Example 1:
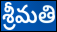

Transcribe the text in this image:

శ్రీమతి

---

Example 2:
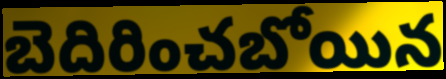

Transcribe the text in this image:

బెదిరించబోయిన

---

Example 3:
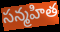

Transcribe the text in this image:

సన్మహిత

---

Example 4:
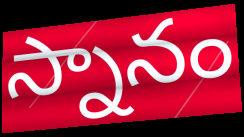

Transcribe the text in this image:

స్నానం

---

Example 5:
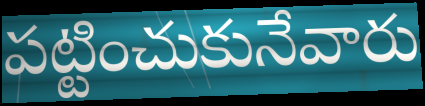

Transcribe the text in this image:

పట్టించుకునేవారు